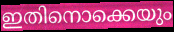
ഇതിനൊക്കെയും